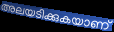
അലയടിക്കുകയാണ്